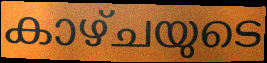
കാഴ്‌ചയുടെ